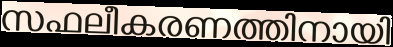
സഫലീകരണത്തിനായി